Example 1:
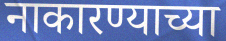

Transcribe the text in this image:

नाकारण्याच्या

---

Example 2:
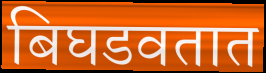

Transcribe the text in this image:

बिघडवतात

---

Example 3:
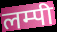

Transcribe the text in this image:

लम्पी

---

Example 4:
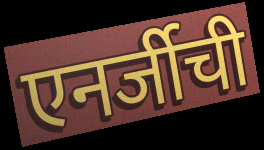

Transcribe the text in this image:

एनर्जीची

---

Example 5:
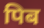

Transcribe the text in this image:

पिब